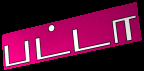
பட்டா